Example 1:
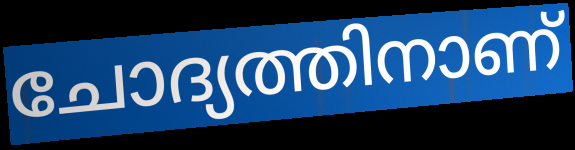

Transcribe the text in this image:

ചോദ്യത്തിനാണ്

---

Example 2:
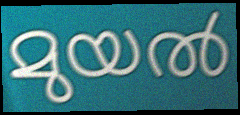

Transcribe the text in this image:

മുയൽ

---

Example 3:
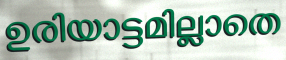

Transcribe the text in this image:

ഉരിയാട്ടമില്ലാതെ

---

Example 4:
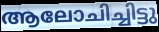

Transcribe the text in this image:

ആലോചിച്ചിട്ടു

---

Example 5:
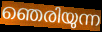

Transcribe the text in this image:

ഞെരിയുന്ന